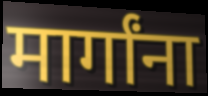
मार्गांना